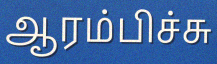
ஆரம்பிச்சு